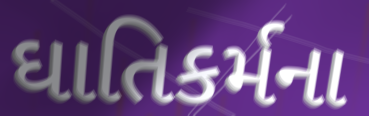
ઘાતિકર્મના